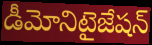
డీమోనిటైజేషన్